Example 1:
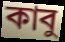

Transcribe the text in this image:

কাবু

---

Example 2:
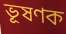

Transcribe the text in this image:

ভূষণক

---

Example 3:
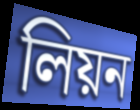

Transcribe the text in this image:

লিয়ন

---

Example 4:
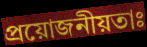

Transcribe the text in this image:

প্ৰয়োজনীয়তাঃ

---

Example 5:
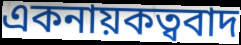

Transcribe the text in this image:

একনায়কত্ববাদ